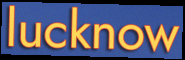
lucknow